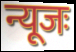
न्यूजः